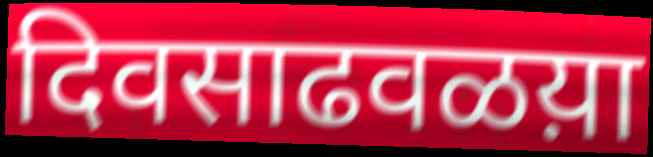
दिवसाढवळय़ा